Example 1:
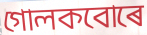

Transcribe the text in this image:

গোলকবোৰে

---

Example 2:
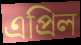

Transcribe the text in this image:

এপ্ৰিল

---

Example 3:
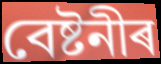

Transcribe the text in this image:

বেষ্টনীৰ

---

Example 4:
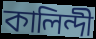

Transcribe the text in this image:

কালিন্দী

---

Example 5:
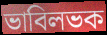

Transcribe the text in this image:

ভাবিলভক